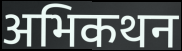
अभिकथन